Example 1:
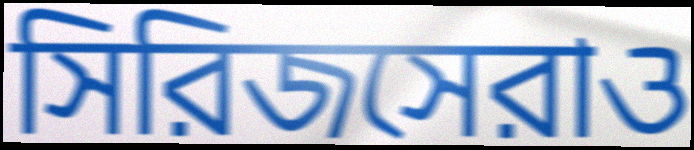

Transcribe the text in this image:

সিরিজসেরাও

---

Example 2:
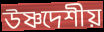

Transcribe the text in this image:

উষ্ণদেশীয়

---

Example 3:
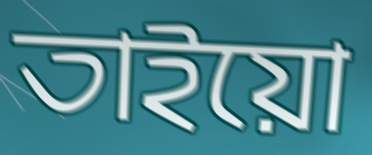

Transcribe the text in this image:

তাইয়ো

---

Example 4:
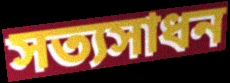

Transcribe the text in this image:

সত্যসাধন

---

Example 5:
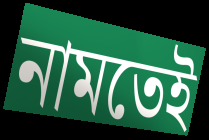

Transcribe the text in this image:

নামতেই